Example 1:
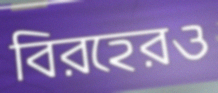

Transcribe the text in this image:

বিরহেরও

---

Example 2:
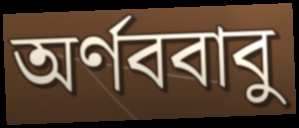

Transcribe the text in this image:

অর্ণববাবু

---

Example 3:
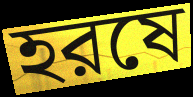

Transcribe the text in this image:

হরষে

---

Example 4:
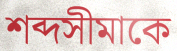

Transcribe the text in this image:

শব্দসীমাকে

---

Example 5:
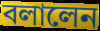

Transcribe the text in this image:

বলালেন